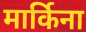
मार्किना